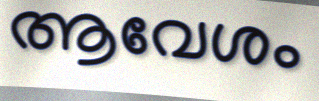
ആവേശം